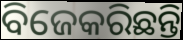
ବିଜେକରିଛନ୍ତି